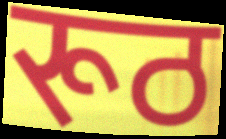
रूठ